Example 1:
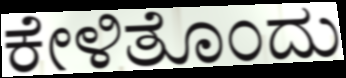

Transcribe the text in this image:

ಕೇಳಿತೊಂದು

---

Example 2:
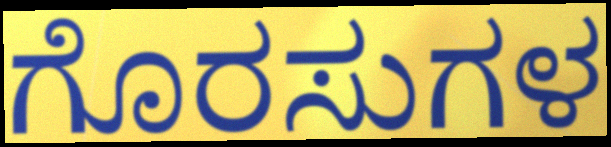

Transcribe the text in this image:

ಗೊರಸುಗಳ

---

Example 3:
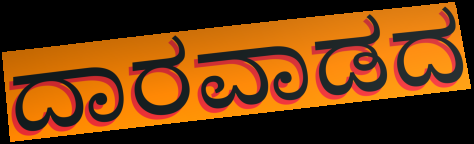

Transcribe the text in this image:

ದಾರವಾಡದ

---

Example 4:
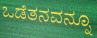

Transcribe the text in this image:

ಒಡೆತನವನ್ನೂ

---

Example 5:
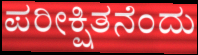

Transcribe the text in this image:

ಪರೀಕ್ಷಿತನೆಂದು